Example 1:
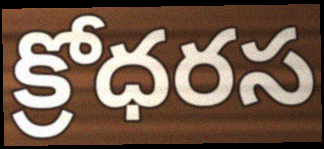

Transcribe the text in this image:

క్రోధరస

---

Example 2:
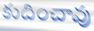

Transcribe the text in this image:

కుదించావు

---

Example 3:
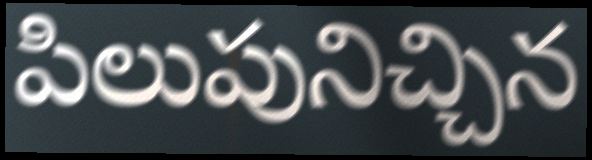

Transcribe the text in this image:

పిలుపునిచ్చిన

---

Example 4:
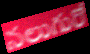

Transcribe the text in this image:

నలుగురో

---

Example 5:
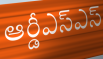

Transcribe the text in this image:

ఆర్డీఎస్ఎస్